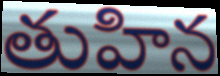
తుహిన